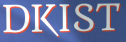
DKIST